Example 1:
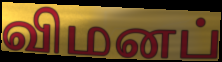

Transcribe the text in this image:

விமனப்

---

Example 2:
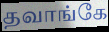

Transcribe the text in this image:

தவாங்கே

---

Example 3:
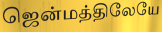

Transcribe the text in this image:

ஜென்மத்திலேயே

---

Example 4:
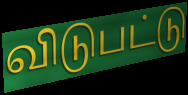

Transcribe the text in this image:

விடுபட்டு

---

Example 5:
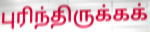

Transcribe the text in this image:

புரிந்திருக்கக்